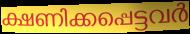
ക്ഷണിക്കപ്പെട്ടവർ